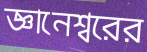
জ্ঞানেশ্বরের